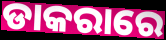
ଡାକରାରେ